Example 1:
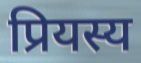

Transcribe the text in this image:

प्रियस्य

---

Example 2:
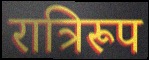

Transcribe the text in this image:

रात्रिरूप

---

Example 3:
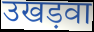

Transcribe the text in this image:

उखड़वा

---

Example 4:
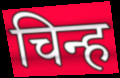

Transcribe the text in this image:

चिन्ह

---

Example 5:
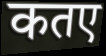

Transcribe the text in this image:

कतए